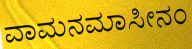
ವಾಮನಮಾಸೀನಂ